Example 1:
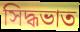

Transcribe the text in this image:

সিদ্ধভাত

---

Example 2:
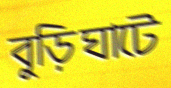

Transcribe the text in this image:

বুড়িঘাটে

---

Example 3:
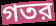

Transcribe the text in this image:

গতর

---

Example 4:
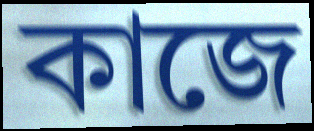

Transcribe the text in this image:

কাজে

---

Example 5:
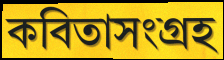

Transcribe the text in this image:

কবিতাসংগ্রহ